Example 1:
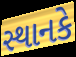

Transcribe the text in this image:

સ્થાનકે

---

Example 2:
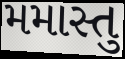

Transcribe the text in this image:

મમાસ્તુ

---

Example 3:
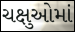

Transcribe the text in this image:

ચક્ષુઓમાં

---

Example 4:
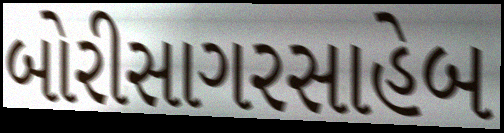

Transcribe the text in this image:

બોરીસાગરસાહેબ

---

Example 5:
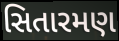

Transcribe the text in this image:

સિતારમણ